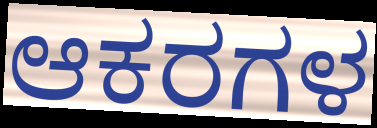
ಆಕರಗಳ